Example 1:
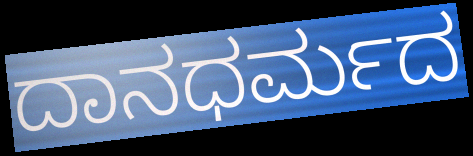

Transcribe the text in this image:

ದಾನಧರ್ಮದ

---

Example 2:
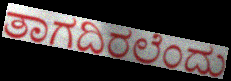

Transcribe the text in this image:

ತಾಗದಿರಲೆಂದು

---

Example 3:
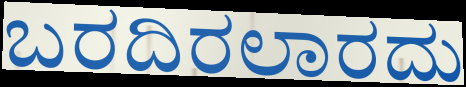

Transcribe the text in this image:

ಬರದಿರಲಾರದು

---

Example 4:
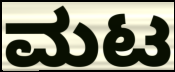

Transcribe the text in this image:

ಮಟ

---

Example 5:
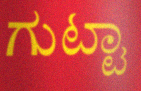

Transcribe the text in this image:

ಗುಟ್ಟಾ